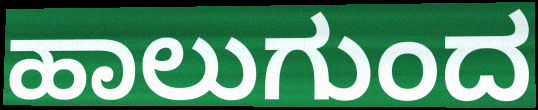
ಹಾಲುಗುಂದ